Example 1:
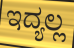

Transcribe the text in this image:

ಇದ್ಯಲ್ಲ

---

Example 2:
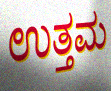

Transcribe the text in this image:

ಉತ್ತಮ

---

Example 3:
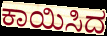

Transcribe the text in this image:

ಕಾಯಿಸಿದ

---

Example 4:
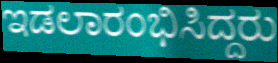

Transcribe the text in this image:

ಇಡಲಾರಂಭಿಸಿದ್ದರು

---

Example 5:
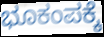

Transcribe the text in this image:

ಭೂಕಂಪಕ್ಕೆ